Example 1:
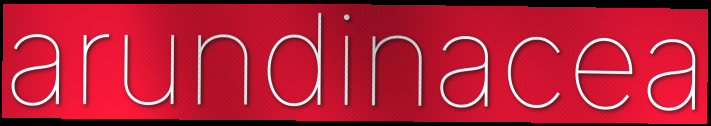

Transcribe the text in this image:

arundinacea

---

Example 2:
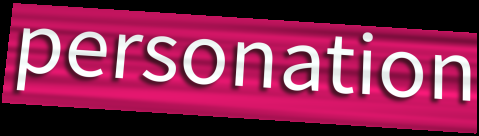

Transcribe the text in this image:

personation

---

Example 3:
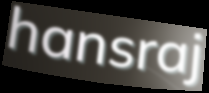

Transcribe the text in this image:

hansraj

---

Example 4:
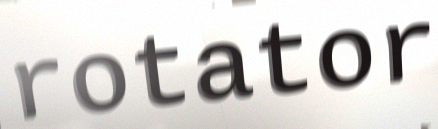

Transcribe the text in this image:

rotator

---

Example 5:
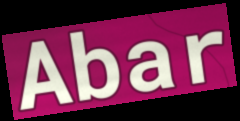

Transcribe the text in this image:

Abar